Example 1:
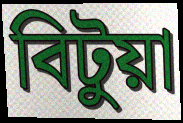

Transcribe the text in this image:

বিটুয়া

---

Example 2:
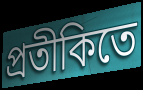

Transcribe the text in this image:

প্রতীকিতে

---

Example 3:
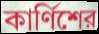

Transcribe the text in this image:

কার্ণিশের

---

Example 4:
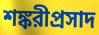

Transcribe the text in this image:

শঙ্করীপ্রসাদ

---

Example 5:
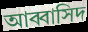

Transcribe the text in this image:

আব্বাসিদ